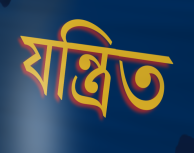
যন্ত্রিত